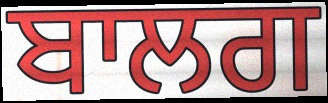
ਬਾਲਗ